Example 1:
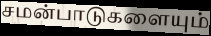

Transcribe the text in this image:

சமன்பாடுகளையும்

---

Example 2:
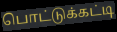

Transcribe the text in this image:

பொட்டுக்கட்டி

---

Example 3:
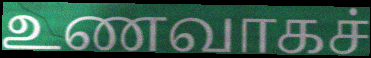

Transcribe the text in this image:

உணவாகச்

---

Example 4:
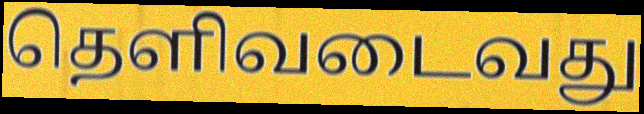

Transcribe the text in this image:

தெளிவடைவது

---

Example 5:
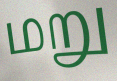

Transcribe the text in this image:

மறு